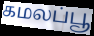
கமலப்பூ